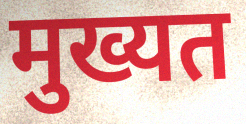
मुख्यत